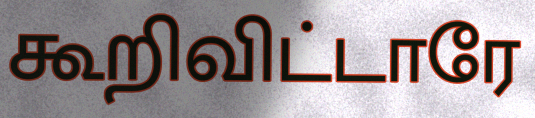
கூறிவிட்டாரே